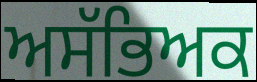
ਅਸੱਭਿਅਕ